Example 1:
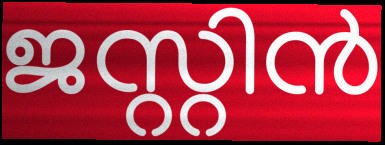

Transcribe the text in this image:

ജസ്റ്റിൻ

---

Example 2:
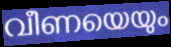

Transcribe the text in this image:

വീണയെയും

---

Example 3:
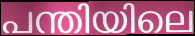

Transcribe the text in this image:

പന്തിയിലെ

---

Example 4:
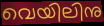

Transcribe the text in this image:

വെയിലിനു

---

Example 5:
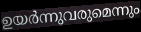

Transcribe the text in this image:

ഉയർന്നുവരുമെന്നും